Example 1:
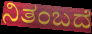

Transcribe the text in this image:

ನಿತಂಬದೆ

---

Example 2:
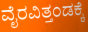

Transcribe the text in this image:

ವೈರವಿತ್ತಂಡಕ್ಕೆ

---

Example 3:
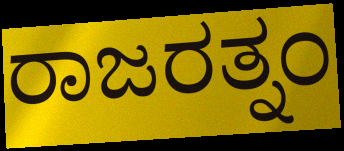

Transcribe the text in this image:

ರಾಜರತ್ನಂ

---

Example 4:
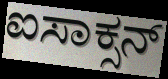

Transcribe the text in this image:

ಐಸಾಕ್ಸನ್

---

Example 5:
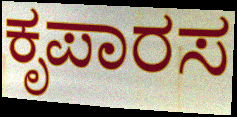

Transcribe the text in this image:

ಕೃಪಾರಸ